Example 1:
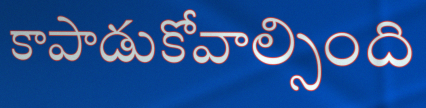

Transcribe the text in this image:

కాపాడుకోవాల్సింది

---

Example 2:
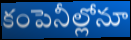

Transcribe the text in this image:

కంపెనీల్లోనూ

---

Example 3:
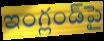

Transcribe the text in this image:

ఇంగ్లండ్‌పై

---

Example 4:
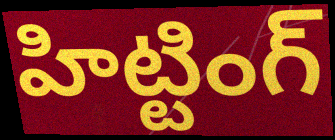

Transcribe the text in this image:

హిట్టింగ్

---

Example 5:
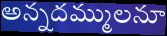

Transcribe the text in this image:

అన్నదమ్ములనూ